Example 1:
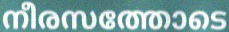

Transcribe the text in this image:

നീരസത്തോടെ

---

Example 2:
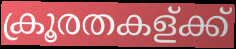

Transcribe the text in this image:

ക്രൂരതകള്ക്ക്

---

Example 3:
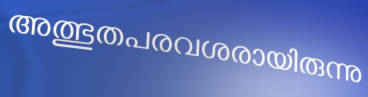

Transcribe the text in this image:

അത്ഭുതപരവശരായിരുന്നു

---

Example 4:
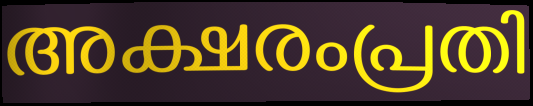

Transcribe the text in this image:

അക്ഷരംപ്രതി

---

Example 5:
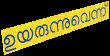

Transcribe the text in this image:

ഉയരുന്നുവെന്ന്